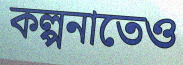
কল্পনাতেও